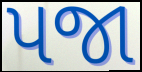
પજા